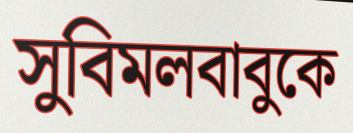
সুবিমলবাবুকে